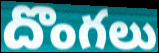
దొంగలు